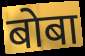
बोबा